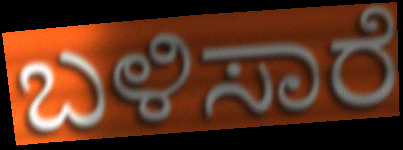
ಬಳಿಸಾರೆ